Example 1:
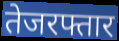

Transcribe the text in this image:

तेजरफ्तार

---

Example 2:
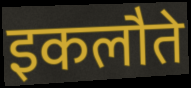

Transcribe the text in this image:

इकलौते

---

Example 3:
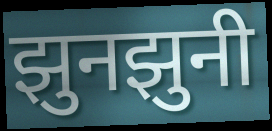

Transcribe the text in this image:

झुनझुनी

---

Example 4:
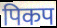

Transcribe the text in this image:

पिकप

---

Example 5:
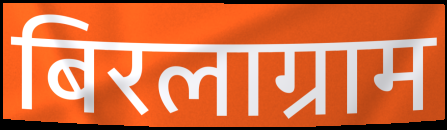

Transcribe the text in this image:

बिरलाग्राम